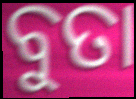
ବୁତା